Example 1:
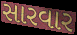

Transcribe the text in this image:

સારવાર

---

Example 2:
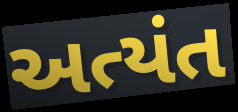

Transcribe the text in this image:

અત્યંત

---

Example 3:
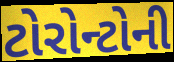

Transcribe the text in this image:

ટોરોન્ટોની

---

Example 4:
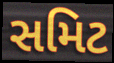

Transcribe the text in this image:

સમિટ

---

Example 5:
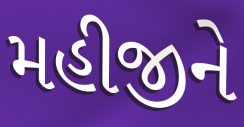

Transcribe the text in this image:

મહીજીને